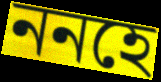
ননহে